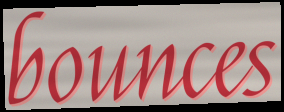
bounces